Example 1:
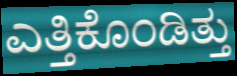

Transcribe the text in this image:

ಎತ್ತಿಕೊಂಡಿತ್ತು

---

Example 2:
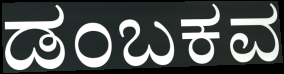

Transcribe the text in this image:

ಡಂಬಕವ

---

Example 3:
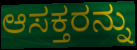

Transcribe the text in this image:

ಆಸಕ್ತರನ್ನು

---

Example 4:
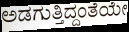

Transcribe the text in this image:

ಅಡಗುತ್ತಿದ್ದಂತೆಯೇ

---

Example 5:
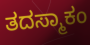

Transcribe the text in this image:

ತದಸ್ಮಾಕಂ